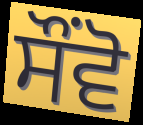
ਸੌਂਵੋ